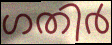
ഗതിർ